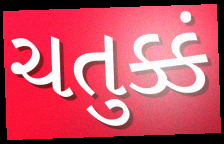
ચતુક્કં